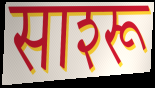
साश्रू